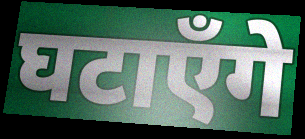
घटाएँगे